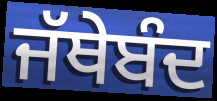
ਜੱਥੇਬੰਦ